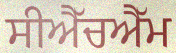
ਸੀਐੱਚਐੱਮ